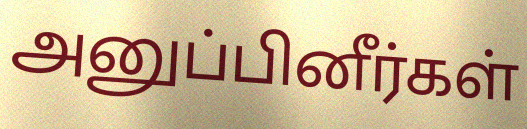
அனுப்பினீர்கள்